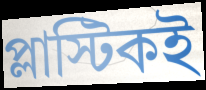
প্লাস্টিকই